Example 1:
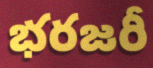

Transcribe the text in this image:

భరజరీ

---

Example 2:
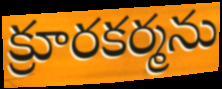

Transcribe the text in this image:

క్రూరకర్మను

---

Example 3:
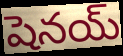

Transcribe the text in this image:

షెనయ్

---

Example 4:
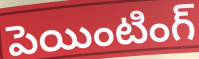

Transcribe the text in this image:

పెయింటింగ్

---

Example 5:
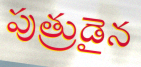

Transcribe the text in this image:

పుత్రుడైన